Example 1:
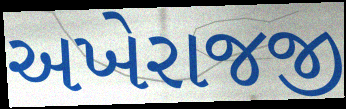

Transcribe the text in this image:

અખેરાજજી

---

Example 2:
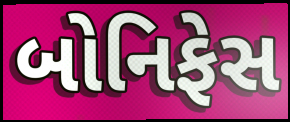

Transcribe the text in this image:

બોનિફેસ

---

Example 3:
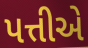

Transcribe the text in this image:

પત્તીએ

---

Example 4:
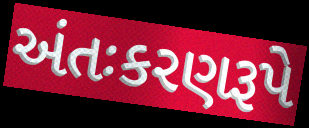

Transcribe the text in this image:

અંતઃકરણરૂપે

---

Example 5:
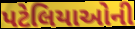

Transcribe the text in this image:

પટેલિયાઓની